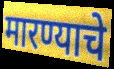
मारण्याचे